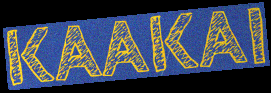
KAAKAI